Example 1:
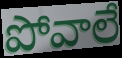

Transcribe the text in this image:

పోవాలే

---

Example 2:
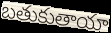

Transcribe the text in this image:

బతుకుతాయా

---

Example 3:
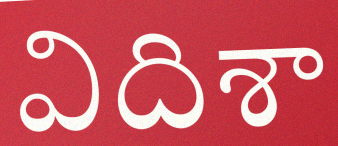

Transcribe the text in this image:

విదిశా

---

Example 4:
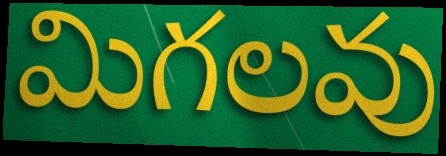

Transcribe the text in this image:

మిగలవు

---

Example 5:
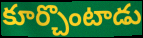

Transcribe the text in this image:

కూర్చొంటాడు